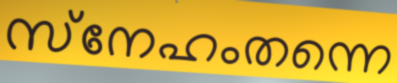
സ്‌നേഹംതന്നെ